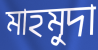
মাহমুদা